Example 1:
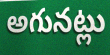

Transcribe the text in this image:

అగునట్లు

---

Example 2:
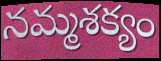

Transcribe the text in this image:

నమ్మశక్యం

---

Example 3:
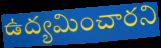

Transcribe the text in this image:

ఉద్యమించారని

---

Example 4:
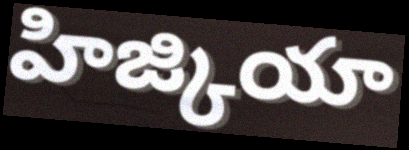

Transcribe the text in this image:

హిజ్కియా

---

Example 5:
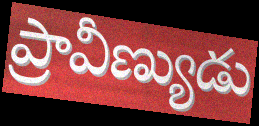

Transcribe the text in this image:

ప్రావీణ్యుడు